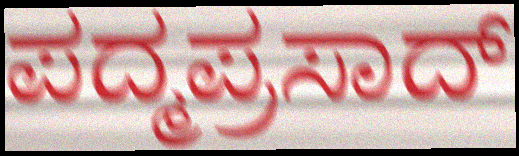
ಪದ್ಮಪ್ರಸಾದ್